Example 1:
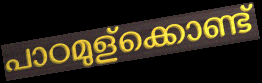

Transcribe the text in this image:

പാഠമുള്ക്കൊണ്ട്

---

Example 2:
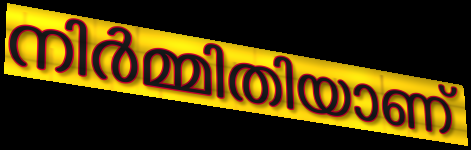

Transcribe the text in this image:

നിർമ്മിതിയാണ്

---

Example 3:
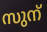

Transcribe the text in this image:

സുന്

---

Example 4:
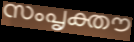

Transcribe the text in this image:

സംപൃക്തൗ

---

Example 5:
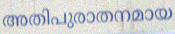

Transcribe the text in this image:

അതിപുരാതനമായ